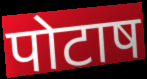
पोटाष